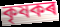
কৃষকৰ